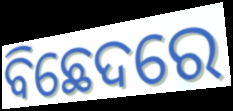
ବିଛେଦରେ